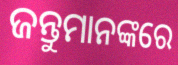
ଜନ୍ତୁମାନଙ୍କରେ